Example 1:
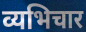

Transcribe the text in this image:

व्यभिचार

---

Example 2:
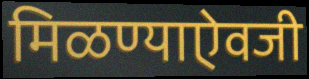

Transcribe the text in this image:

मिळण्याऐवजी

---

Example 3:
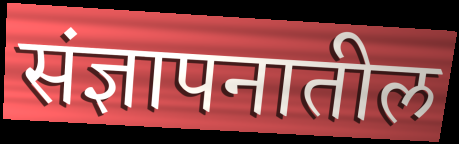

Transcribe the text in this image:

संज्ञापनातील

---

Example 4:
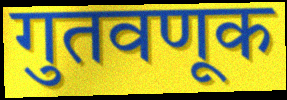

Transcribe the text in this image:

गुतवणूक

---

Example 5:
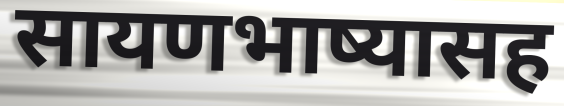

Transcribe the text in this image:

सायणभाष्यासह